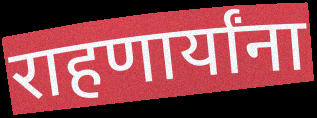
राहणार्यांना